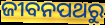
ଜୀବନପଥରୁ